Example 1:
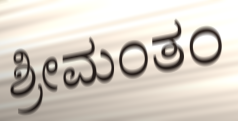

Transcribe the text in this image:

ಶ್ರೀಮಂತಂ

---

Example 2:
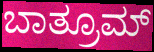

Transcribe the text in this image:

ಬಾತ್ರೂಮ್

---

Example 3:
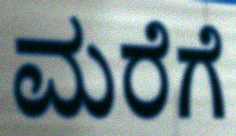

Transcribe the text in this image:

ಮರೆಗೆ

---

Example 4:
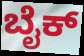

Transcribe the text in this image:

ಬೈಕ್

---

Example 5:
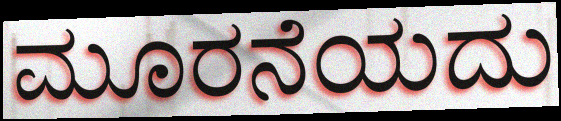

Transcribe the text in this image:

ಮೂರನೆಯದು